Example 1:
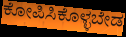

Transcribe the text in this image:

ಕೋಪಿಸಿಕೊಳ್ಳಬೇಡ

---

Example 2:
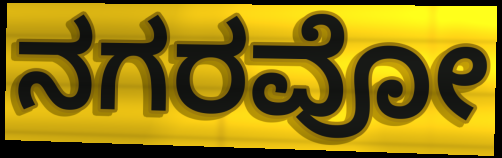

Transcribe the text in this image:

ನಗರವೋ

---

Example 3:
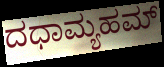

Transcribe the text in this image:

ದಧಾಮ್ಯಹಮ್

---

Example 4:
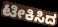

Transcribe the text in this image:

ಟೀಕಿಸಿದ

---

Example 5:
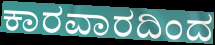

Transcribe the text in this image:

ಕಾರವಾರದಿಂದ